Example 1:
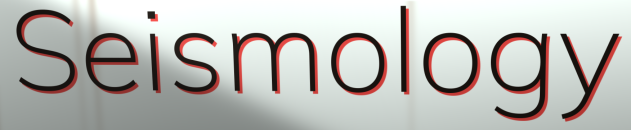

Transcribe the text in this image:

Seismology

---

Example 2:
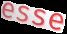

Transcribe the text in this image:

esse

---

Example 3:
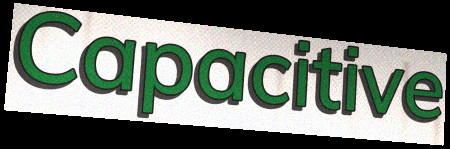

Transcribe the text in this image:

Capacitive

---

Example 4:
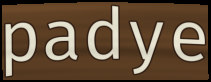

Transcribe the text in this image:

padye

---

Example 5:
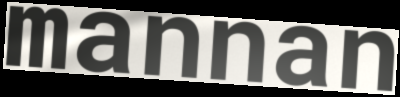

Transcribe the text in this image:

mannan